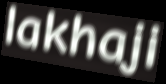
lakhaji